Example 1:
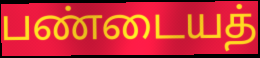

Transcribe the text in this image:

பண்டையத்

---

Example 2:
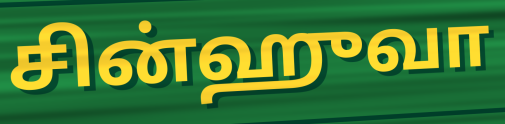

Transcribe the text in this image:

சின்ஹுவா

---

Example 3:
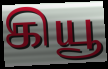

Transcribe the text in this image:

கியூ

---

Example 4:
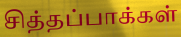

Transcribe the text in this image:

சித்தப்பாக்கள்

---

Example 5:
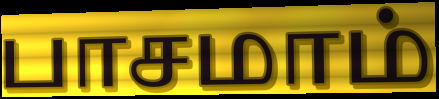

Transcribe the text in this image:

பாசமாம்